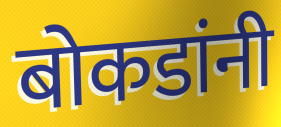
बोकडांनी